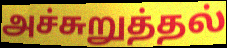
அச்சுறுத்தல்